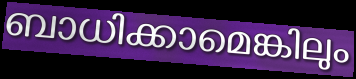
ബാധിക്കാമെങ്കിലും